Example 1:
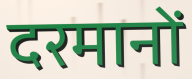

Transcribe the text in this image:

दरमानों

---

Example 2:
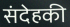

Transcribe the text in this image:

संदेहकी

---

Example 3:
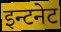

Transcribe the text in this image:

इन्टनेट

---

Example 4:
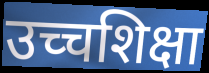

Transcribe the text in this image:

उच्चशिक्षा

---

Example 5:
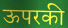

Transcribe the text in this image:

ऊपरकी